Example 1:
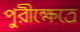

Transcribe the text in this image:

পুরীক্ষেত্রে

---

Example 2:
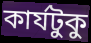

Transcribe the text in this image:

কার্যটুকু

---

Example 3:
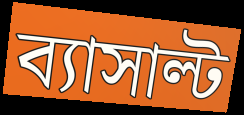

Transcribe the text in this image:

ব্যাসাল্ট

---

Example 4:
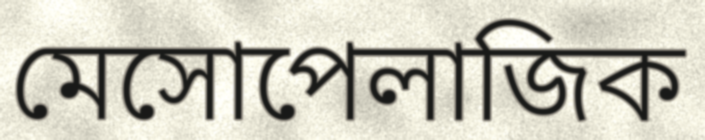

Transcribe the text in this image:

মেসোপেলাজিক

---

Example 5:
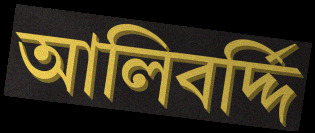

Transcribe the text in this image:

আলিবর্দ্দি